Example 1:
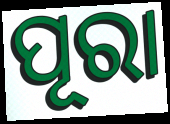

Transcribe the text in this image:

ପୂରା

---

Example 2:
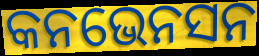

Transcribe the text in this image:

କନଭେନସନ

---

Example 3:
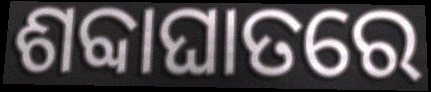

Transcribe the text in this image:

ଶବ୍ଦାଘାତରେ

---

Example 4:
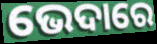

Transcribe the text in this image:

ଭେଦାରେ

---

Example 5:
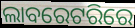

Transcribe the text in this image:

ଲାବରେଟରିରେ